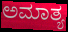
ಅಮಾತ್ಯ